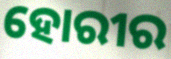
ହୋରୀର